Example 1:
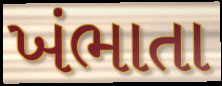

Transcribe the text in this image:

ખંભાતા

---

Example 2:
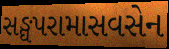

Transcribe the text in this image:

સઙ્ઘપરામાસવસેન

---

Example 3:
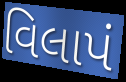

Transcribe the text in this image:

વિલાપં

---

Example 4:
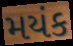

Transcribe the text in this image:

મયંક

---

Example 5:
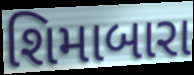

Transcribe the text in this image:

શિમાબારા